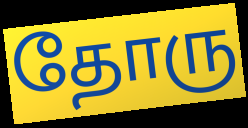
தோரு